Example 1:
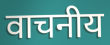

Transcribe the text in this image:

वाचनीय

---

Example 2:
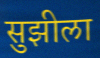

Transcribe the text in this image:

सुझीला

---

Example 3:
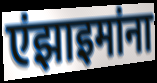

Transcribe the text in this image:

एंझाइमांना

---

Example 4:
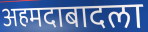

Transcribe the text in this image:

अहमदाबादला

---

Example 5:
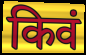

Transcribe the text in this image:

किवं